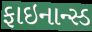
ફાઇનાન્સ્ડ